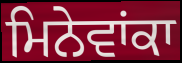
ਮਿਨੇਵਾਂਕਾ